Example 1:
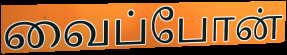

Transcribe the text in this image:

வைப்போன்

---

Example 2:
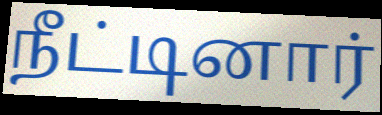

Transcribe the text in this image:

நீட்டினார்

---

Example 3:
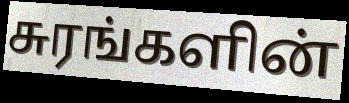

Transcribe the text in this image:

சுரங்களின்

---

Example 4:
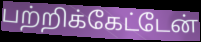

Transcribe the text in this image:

பற்றிக்கேட்டேன்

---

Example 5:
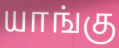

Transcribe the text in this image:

யாங்கு